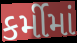
કર્મીમાં